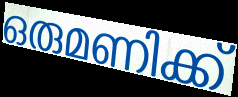
ഒരുമണിക്ക്